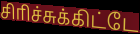
சிரிச்சுக்கிட்டே